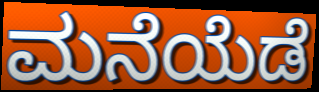
ಮನೆಯೆಡೆ